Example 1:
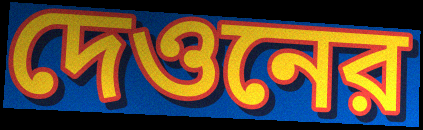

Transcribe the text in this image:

দেওনের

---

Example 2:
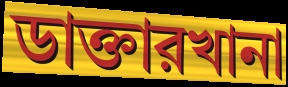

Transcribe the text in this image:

ডাক্তারখানা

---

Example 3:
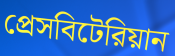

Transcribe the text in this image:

প্রেসবিটেরিয়ান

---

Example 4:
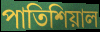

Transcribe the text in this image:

পাতিশিয়াল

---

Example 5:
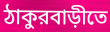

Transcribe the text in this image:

ঠাকুরবাড়ীতে